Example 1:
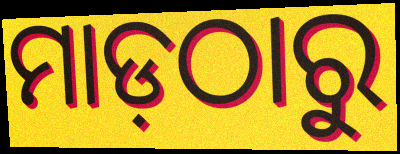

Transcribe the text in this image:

ମାଡ଼ଠାରୁ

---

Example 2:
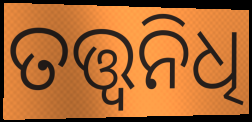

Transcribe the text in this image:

ତତ୍ତ୍ଵନିଧି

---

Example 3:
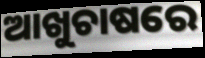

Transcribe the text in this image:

ଆଖୁଚାଷରେ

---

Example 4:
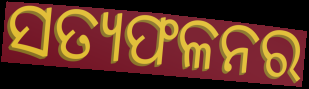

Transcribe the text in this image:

ସତ୍ୟଫଳନର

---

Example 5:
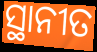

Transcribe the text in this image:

ସ୍ଥାନୀତ